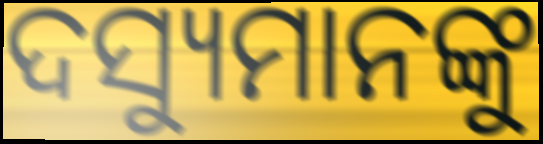
ଦସ୍ୟୁମାନଙ୍କୁ